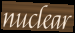
nuclear